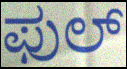
ಫುಲ್